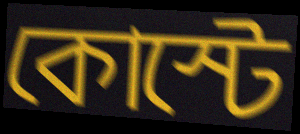
কোস্টে